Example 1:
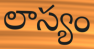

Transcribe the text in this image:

లాస్యం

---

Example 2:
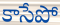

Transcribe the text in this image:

కాసేపో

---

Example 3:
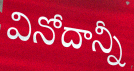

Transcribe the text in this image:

వినోదాన్నీ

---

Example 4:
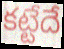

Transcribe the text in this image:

కట్టేదే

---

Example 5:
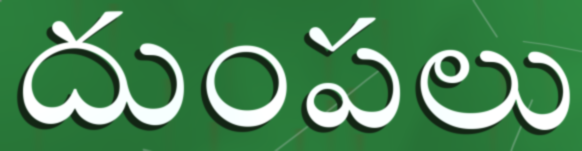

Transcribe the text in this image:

దుంపలు